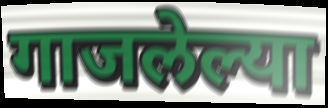
गाजलेल्या